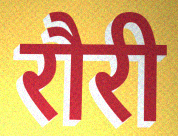
रौरी